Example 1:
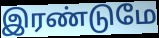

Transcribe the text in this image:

இரண்டுமே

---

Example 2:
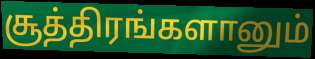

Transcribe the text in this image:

சூத்திரங்களானும்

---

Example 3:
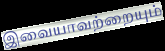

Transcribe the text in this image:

இவையாவற்றையும்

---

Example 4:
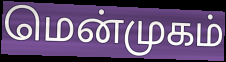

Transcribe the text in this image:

மென்முகம்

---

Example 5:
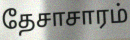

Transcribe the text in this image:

தேசாசாரம்